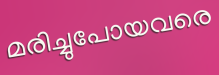
മരിച്ചുപോയവരെ